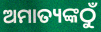
ଅମାତ୍ୟଙ୍କଠୁଁ